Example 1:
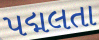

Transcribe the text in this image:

પદ્મલતા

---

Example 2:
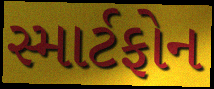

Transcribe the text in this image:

સ્માર્ટફોન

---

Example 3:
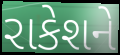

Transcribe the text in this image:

રાકેશને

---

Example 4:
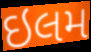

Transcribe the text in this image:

ઇલમ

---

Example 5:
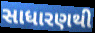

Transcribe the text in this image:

સાધારણથી